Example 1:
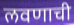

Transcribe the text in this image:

लवणाची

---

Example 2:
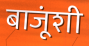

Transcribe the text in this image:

बाजूंशी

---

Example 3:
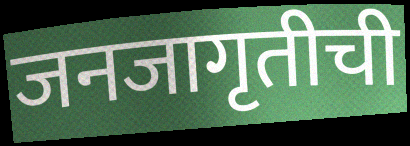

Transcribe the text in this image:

जनजागृतीची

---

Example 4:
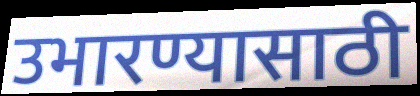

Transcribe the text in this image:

उभारण्यासाठी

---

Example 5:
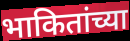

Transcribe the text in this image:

भाकितांच्या